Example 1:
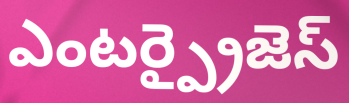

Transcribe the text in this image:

ఎంటర్ప్రైజెస్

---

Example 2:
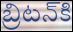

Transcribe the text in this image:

బ్రిటన్‌కి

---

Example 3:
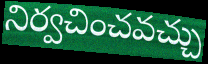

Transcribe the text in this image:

నిర్వచించవచ్చు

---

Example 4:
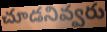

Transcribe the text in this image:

చూడనివ్వరు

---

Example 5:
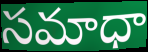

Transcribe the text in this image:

సమాధా